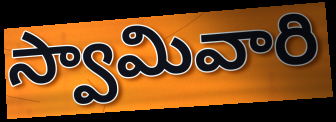
స్వామివారి